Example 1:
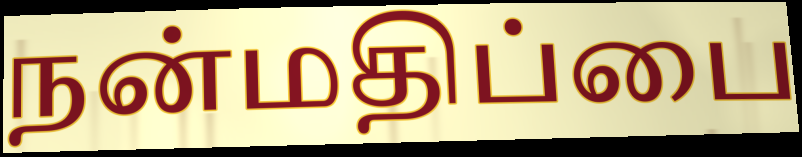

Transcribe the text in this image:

நன்மதிப்பை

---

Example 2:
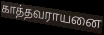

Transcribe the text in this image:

காத்தவராயனை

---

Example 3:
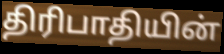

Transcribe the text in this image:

திரிபாதியின்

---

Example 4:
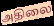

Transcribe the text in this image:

அதிலை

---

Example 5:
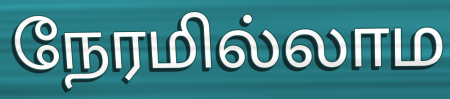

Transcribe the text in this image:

நேரமில்லாம